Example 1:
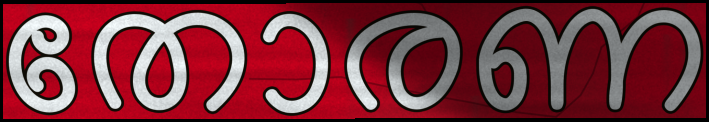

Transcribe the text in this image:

തോരണ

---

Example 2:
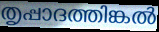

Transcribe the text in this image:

തൃപ്പാദത്തിങ്കൽ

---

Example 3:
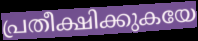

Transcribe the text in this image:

പ്രതീക്ഷിക്കുകയേ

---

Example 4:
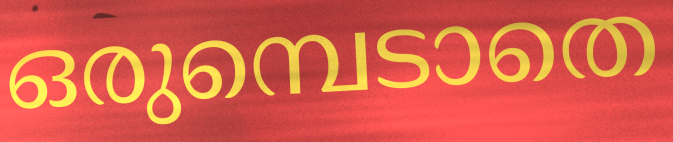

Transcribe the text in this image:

ഒരുമ്പെടാതെ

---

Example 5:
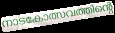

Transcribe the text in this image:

നാടകോത്സവത്തിന്റെ